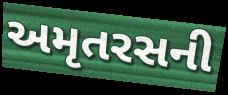
અમૃતરસની